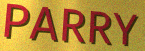
PARRY